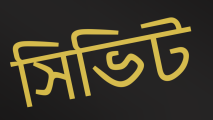
সিভিট